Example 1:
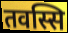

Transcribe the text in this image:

तवस्सि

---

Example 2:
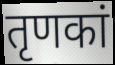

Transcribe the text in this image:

तृणकां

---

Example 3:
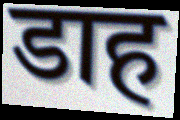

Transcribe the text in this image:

डाह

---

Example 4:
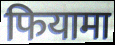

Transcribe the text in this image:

फियामा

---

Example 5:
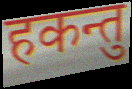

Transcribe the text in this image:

हकन्तु